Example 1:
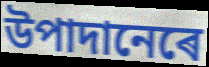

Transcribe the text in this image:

উপাদানেৰে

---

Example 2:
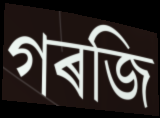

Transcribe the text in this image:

গৰজি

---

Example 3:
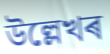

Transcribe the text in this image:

উল্লেখৰ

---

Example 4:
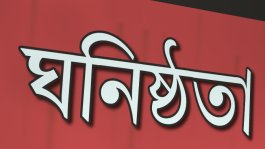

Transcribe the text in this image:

ঘনিষ্ঠতা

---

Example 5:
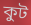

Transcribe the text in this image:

কুট